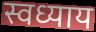
स्वध्याय